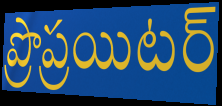
ప్రొప్రయిటర్